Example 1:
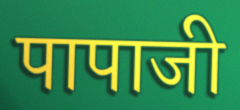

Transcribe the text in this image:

पापाजी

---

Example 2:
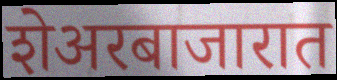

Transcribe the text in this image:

शेअरबाजारात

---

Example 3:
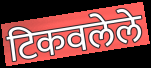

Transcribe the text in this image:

टिकवलेले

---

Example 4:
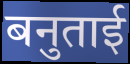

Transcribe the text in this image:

बनुताई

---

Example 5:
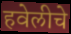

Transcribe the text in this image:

हवेलीचे